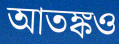
আতঙ্কও